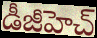
డీజీహెచ్